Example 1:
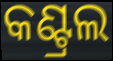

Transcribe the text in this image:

କଣ୍ଟ୍ରଲ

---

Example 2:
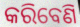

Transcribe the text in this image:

କରିବେଣି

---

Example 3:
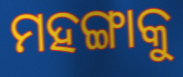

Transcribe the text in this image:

ମହଙ୍ଗାକୁ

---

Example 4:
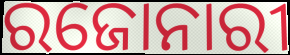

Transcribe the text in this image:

ରଜୋନାରୀ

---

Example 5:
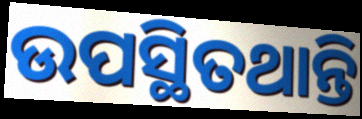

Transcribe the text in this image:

ଉପସ୍ଥିତଥାନ୍ତି